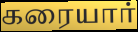
கரையார்